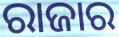
ରାଜାର